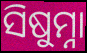
ସିଷୁମ୍ନା